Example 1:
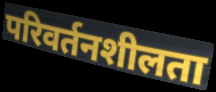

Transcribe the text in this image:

परिवर्तनशीलता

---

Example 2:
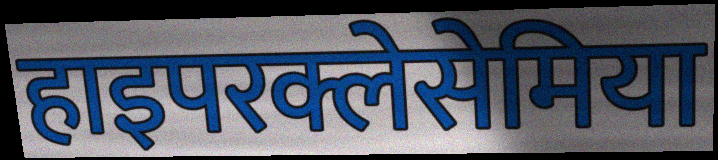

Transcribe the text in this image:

हाइपरक्लेसेमिया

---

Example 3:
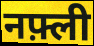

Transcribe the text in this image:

नफ़्ली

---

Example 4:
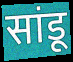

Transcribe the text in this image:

सांडू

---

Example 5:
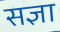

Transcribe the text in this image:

सज्ञा